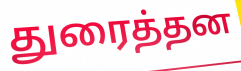
துரைத்தன